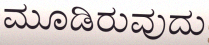
ಮೂಡಿರುವುದು